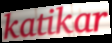
katikar